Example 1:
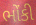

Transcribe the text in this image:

ભોંકી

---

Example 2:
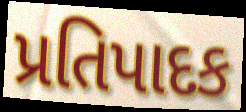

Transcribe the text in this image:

પ્રતિપાદક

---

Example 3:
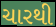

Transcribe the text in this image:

ચારથી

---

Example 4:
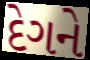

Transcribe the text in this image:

દેગને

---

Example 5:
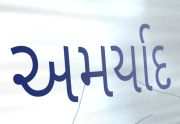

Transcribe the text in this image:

અમર્યાદ